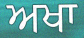
ਅਖਾ